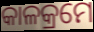
କାଳକ୍ରମେ